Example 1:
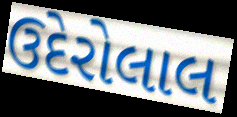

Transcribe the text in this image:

ઉદેરોલાલ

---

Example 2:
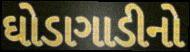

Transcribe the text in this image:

ઘોડાગાડીનો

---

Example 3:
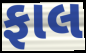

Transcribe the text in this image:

ફાલ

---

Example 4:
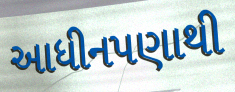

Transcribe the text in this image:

આધીનપણાથી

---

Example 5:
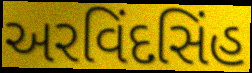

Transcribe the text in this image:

અરવિંદસિંહ